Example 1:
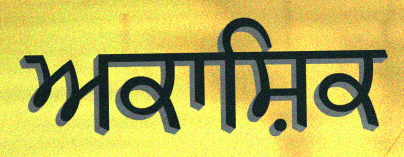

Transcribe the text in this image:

ਅਕਾਸ਼ਿਕ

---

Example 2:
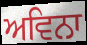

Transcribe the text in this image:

ਅਵਿਨਾ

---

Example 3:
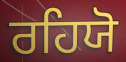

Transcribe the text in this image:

ਰਹਿਯੋ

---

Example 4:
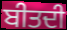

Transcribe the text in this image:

ਬੀਤਦੀ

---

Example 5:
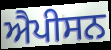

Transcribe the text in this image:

ਐਪੀਸਨ